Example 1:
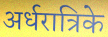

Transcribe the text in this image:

अर्धरात्रिके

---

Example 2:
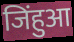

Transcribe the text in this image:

जिंहुआ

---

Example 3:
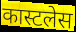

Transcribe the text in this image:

कास्टलेस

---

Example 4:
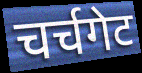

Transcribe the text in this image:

चर्चगेट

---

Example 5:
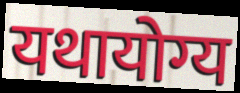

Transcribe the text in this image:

यथायोग्य